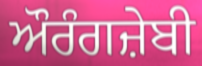
ਔਰੰਗਜ਼ੇਬੀ